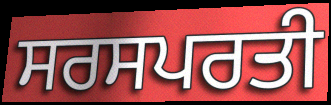
ਸਰਸਪਰਤੀ